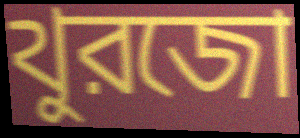
থুরজো